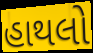
હાથલો